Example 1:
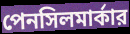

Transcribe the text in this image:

পেনসিলমার্কার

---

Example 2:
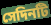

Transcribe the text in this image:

সেদিনটি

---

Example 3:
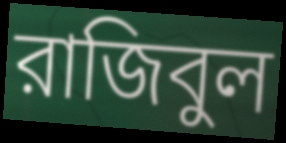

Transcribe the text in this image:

রাজিবুল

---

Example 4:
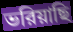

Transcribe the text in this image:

ভরিয়াছি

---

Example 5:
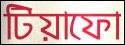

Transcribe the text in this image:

টিয়াফো